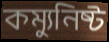
কম্যুনিষ্ট